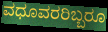
ವಧೂವರರಿಬ್ಬರೂ